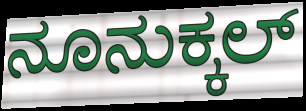
ನೂನುಕ್ಕಲ್